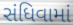
સંધિવામાં